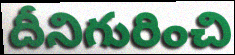
దీనిగురించి